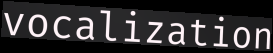
vocalization